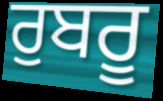
ਰੁਬਰੂ